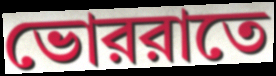
ভোররাতে